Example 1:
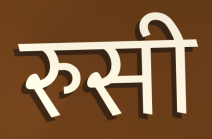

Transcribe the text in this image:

रुसी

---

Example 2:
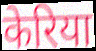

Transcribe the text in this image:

केरिया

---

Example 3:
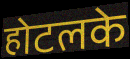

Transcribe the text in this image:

होटलके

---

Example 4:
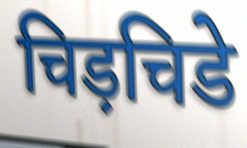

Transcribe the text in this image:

चिड़चिडे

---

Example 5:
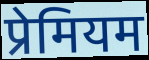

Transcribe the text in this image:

प्रेमियम